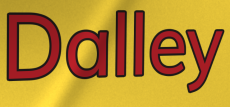
Dalley